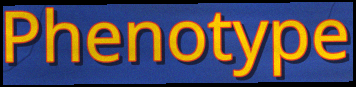
Phenotype